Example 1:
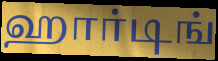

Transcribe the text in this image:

ஹார்டிங்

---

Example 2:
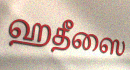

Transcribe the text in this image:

ஹதீஸை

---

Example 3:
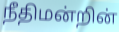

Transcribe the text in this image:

நீதிமன்றின்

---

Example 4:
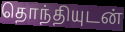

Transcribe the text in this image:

தொந்தியுடன்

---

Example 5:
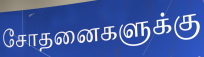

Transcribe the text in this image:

சோதனைகளுக்கு